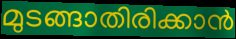
മുടങ്ങാതിരിക്കാൻ